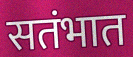
सतंभात